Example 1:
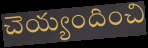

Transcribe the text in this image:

చెయ్యందించి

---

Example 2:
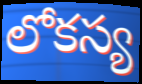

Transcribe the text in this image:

లోకస్య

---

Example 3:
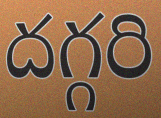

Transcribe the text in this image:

దగ్గరి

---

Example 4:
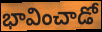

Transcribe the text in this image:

భావించాడో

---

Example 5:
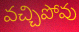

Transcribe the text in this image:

వచ్చిపోవు